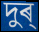
দুৰ্